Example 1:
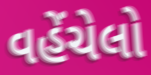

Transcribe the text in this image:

વહેંચેલો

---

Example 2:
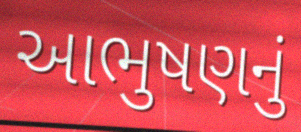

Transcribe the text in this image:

આભુષણનું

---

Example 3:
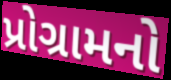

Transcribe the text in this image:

પ્રોગ્રામનો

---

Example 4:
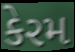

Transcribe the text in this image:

કેરમ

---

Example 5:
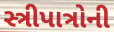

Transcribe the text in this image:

સ્ત્રીપાત્રોની